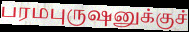
பரமபுருஷனுக்குச்